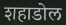
शहाडोल